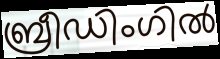
ബ്രീഡിംഗിൽ